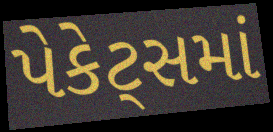
પેકેટ્સમાં